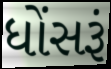
ધોંસરૂં